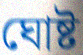
ঘোষ্ট